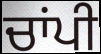
ਚਾਂਪੀ